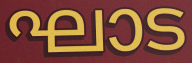
ഘാട